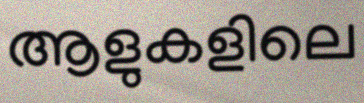
ആളുകളിലെ